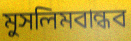
মুসলিমবান্ধব